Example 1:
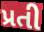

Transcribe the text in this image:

પ્રતી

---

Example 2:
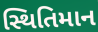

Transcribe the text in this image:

સ્થિતિમાન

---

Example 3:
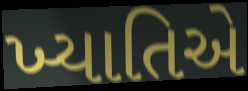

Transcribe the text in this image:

ખ્યાતિએ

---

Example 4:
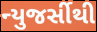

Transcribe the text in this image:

ન્યુજર્સીથી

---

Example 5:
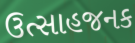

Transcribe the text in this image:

ઉત્સાહજનક